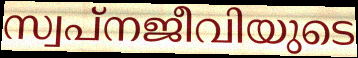
സ്വപ്നജീവിയുടെ